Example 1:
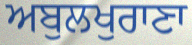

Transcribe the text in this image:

ਅਬੁਲਖੁਰਾਣਾ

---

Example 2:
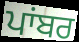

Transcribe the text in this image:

ਪਾਂਬਰ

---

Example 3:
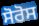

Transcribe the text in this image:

ਸੋਰੋਸ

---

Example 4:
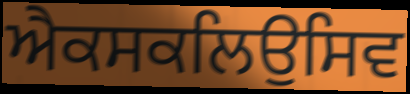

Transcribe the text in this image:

ਐਕਸਕਲਿਉਸਿਵ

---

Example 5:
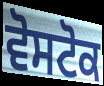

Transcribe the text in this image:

ਵੋਸਟੋਕ